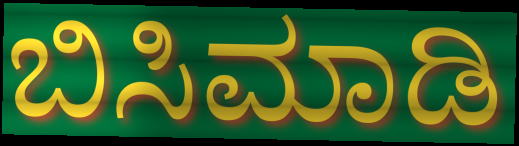
ಬಿಸಿಮಾಡಿ